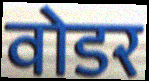
वोडर